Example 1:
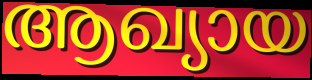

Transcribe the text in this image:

ആഖ്യായ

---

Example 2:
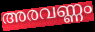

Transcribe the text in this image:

അരവണ്ണം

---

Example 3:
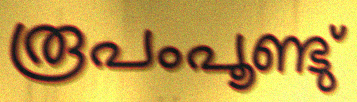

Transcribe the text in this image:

രൂപംപൂണ്ടു്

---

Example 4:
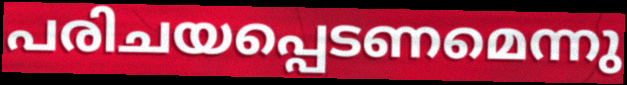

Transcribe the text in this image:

പരിചയപ്പെടണമെന്നു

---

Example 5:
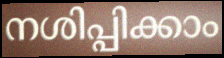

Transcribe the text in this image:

നശിപ്പിക്കാം